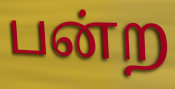
பன்ற